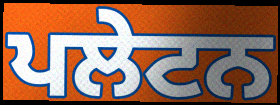
ਪਲੇਟਨ